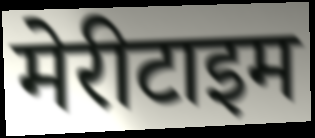
मेरीटाइम